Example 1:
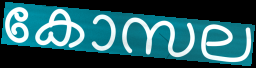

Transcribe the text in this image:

കോസല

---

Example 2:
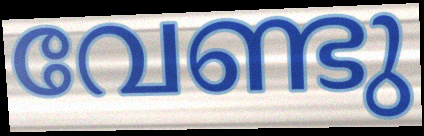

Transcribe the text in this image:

വേണ്ടു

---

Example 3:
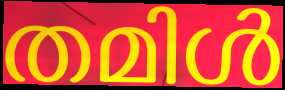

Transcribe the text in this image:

തമിൾ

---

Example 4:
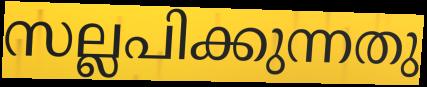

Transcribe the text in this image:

സല്ലപിക്കുന്നതു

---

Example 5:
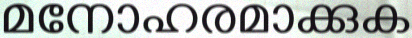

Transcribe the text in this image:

മനോഹരമാക്കുക